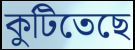
কুটিতেছে